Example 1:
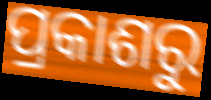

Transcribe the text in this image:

ପ୍ରକାଶରୁ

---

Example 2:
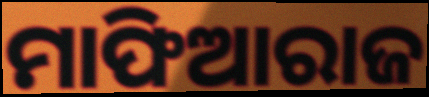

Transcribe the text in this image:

ମାଫିଆରାଜ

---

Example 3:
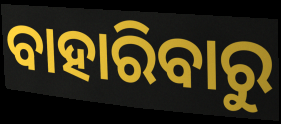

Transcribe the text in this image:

ବାହାରିବାରୁ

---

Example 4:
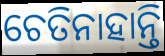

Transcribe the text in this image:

ଚେତିନାହାନ୍ତି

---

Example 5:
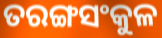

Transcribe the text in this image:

ତରଙ୍ଗସଂକୁଳ